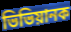
ভিভিয়ানক